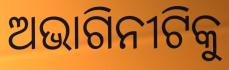
ଅଭାଗିନୀଟିକୁ